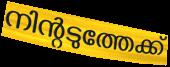
നിന്റടുത്തേക്ക്